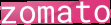
zomato